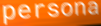
persona